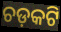
ଚଡ଼କଟି